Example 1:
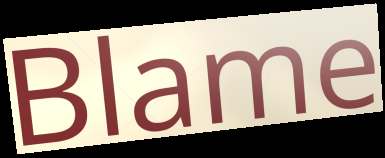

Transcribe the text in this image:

Blame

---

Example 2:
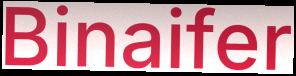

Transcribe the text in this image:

Binaifer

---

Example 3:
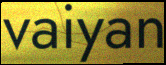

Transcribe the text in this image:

vaiyan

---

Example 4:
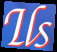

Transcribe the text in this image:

Ils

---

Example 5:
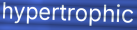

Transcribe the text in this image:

hypertrophic